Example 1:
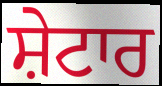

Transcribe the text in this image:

ਸ਼ੇਟਾਰ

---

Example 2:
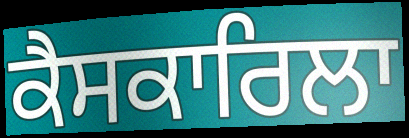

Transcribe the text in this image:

ਕੈਸਕਾਰਿਲਾ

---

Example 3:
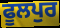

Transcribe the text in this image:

ਫੂਲਪੁਰ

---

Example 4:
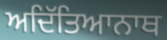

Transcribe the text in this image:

ਅਦਿੱਤਿਆਨਾਥ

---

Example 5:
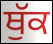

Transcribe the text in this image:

ਥੁੱਕ